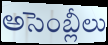
అసెంబ్లీలు